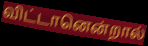
விட்டானென்றால்